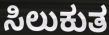
ಸಿಲುಕುತ